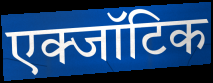
एक्जॉटिक